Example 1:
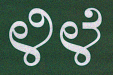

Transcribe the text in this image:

ಳಿಳೆ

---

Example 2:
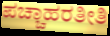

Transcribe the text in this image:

ಪಚ್ಚಾಹರತೀತಿ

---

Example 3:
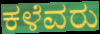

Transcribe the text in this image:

ಕಳೆವರು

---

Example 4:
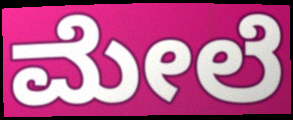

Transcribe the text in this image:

ಮೇಲೆ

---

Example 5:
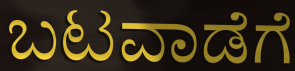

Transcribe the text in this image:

ಬಟವಾಡೆಗೆ